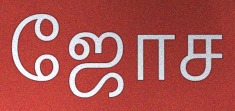
ஜோச